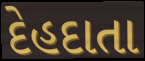
દેહદાતા